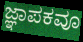
ಜ್ಞಾಪಕವೂ